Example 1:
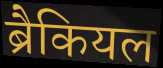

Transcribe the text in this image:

ब्रैकियल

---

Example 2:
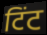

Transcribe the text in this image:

टिंट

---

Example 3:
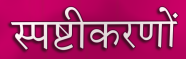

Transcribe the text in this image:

स्पष्टीकरणों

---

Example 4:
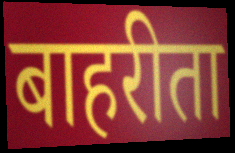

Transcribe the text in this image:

बाहरीता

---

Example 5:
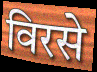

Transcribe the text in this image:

विरसे